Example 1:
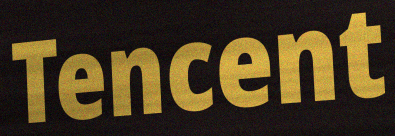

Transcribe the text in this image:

Tencent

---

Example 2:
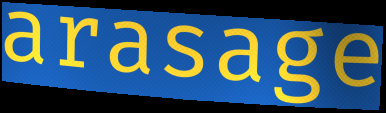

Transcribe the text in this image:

arasage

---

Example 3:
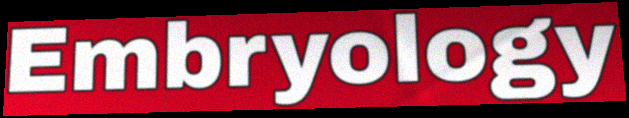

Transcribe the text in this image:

Embryology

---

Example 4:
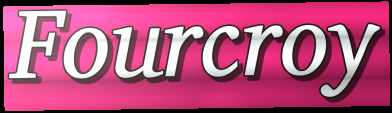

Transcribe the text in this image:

Fourcroy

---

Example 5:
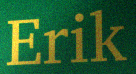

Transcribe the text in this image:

Erik